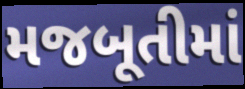
મજબૂતીમાં